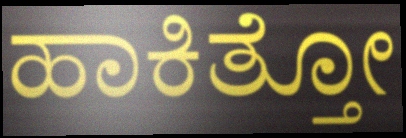
ಹಾಕಿತ್ತೋ